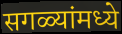
सगळ्यांमध्ये